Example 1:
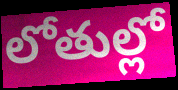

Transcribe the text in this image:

లోతుల్లో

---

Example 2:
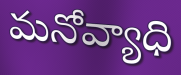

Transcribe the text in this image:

మనోవ్యాధి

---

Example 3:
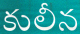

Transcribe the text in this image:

కులీన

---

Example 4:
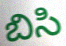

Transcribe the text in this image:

బిసి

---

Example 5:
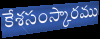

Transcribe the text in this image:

కేశసంస్కారము